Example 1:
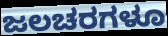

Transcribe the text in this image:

ಜಲಚರಗಳೂ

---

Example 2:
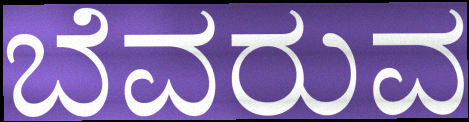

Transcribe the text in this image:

ಬೆವರುವ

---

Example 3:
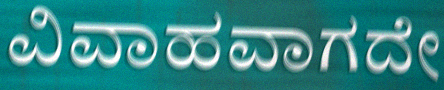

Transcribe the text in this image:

ವಿವಾಹವಾಗದೇ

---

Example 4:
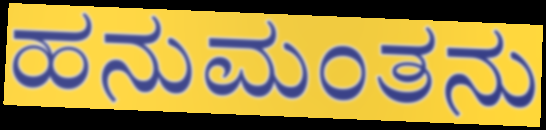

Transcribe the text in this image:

ಹನುಮಂತನು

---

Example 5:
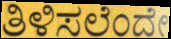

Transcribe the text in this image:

ತಿಳಿಸಲೆಂದೇ